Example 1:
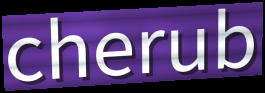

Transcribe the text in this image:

cherub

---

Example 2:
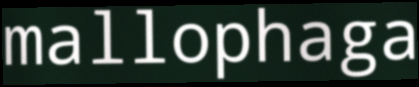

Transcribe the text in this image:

mallophaga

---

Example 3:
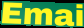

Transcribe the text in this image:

Emai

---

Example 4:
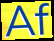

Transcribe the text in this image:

Af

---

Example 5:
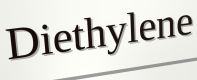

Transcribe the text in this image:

Diethylene